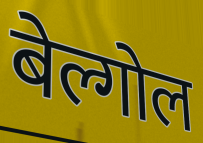
बेल्गोल